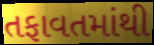
તફાવતમાંથી